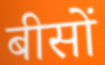
बीसों